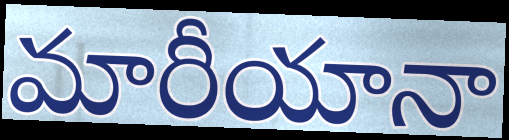
మారీయానా